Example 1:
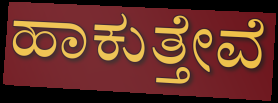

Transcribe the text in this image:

ಹಾಕುತ್ತೇವೆ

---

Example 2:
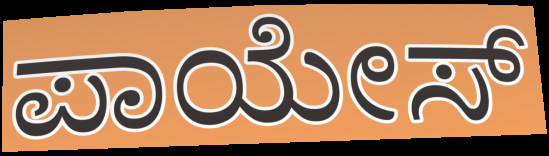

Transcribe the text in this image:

ಪಾಯೇಸ್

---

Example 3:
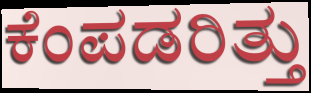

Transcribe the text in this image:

ಕೆಂಪಡರಿತ್ತು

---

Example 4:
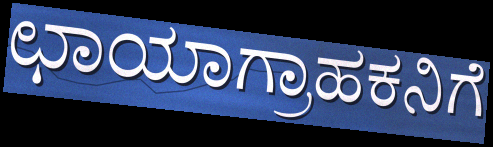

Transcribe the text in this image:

ಛಾಯಾಗ್ರಾಹಕನಿಗೆ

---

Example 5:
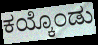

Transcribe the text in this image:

ಕಯ್ಕೊಂಡು